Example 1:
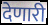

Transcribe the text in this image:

देणारी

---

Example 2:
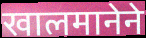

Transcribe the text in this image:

खालमानेने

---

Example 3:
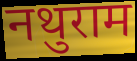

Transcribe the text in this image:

नथुराम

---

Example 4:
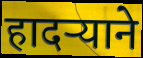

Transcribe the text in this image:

हादऱ्याने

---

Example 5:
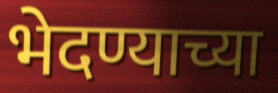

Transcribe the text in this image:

भेदण्याच्या